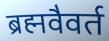
ब्रह्मवैवर्त